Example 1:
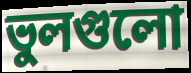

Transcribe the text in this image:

ভুলগুলো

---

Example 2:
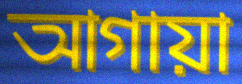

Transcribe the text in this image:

আগায়া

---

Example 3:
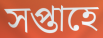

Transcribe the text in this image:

সপ্তাহে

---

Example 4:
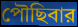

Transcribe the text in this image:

পৌছিবার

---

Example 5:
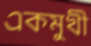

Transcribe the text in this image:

একমুখী